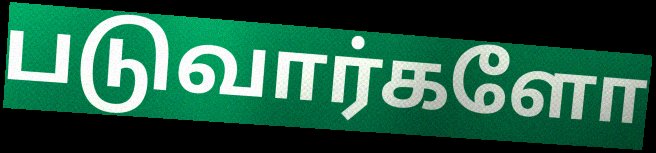
படுவார்களோ